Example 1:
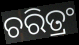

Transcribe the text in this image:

ଚରିତ୍ରଂ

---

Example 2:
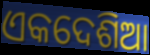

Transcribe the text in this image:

ଏକଦେଶିଆ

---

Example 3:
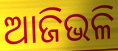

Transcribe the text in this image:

ଆଜିଭଳି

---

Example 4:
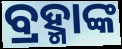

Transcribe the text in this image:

ବ୍ରହ୍ମାଙ୍କ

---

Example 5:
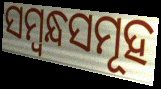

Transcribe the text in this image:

ସମ୍ୱନ୍ଧସମୂହ